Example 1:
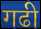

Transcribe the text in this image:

गढी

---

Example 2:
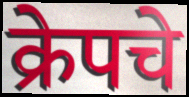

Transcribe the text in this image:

क्रेपचे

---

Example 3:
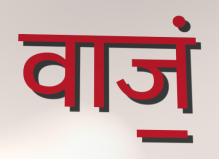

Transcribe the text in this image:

वाजं॒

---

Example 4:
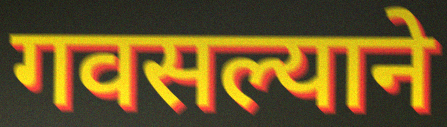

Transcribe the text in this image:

गवसल्याने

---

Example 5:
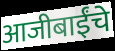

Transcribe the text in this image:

आजीबाईंचे